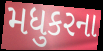
મધુકરના